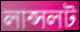
লান্সলট